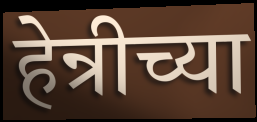
हेन्रीच्या